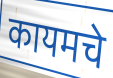
कायमचे